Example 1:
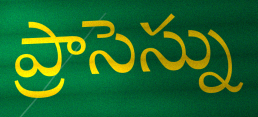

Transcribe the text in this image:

ప్రాసెస్ను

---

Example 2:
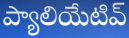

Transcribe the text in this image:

ప్యాలియేటివ్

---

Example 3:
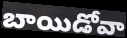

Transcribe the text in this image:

బాయిడోవా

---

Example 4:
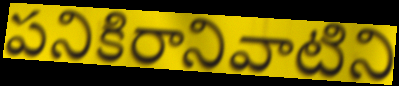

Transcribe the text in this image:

పనికిరానివాటిని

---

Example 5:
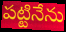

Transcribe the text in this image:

పట్టినేను